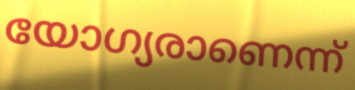
യോഗ്യരാണെന്ന്